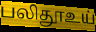
பலிதூஉய்